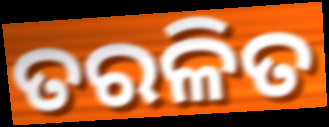
ତରଳିତ